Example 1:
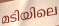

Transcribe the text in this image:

മടിയിലെ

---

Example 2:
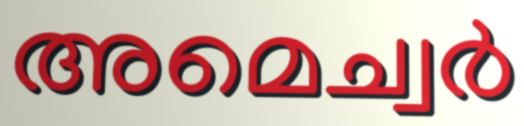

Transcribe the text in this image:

അമെച്വർ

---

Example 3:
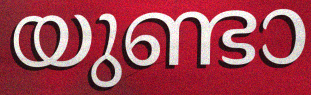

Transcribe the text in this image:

യുണ്ടാ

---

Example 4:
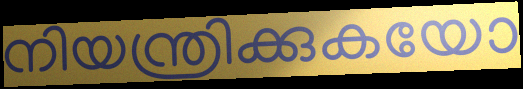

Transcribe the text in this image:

നിയന്ത്രിക്കുകയോ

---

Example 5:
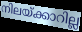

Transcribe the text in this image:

നിലയ്ക്കാറില്ല